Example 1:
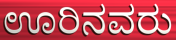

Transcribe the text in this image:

ಊರಿನವರು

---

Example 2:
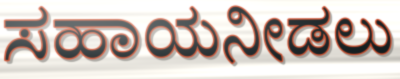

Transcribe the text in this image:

ಸಹಾಯನೀಡಲು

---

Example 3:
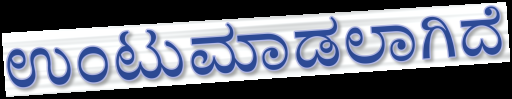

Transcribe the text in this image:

ಉಂಟುಮಾಡಲಾಗಿದೆ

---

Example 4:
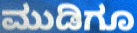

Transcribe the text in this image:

ಮುಡಿಗೂ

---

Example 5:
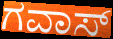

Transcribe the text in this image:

ಗವಾಸ್